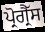
ਪ੍ਰੋਗ੍ਰੈੱਸ